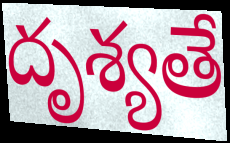
దృశ్యతే